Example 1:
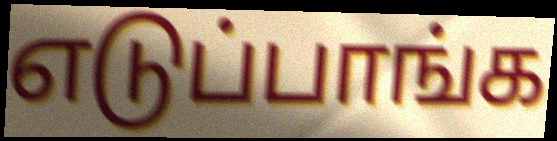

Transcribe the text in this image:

எடுப்பாங்க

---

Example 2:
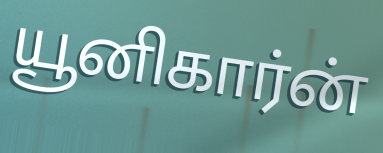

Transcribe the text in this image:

யூனிகார்ன்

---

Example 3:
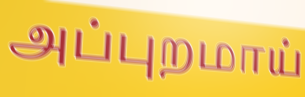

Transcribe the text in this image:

அப்புறமாய்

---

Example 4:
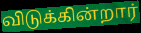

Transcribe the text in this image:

விடுக்கின்றார்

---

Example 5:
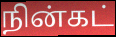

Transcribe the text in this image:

நின்கட்